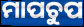
ମାପଚୁପ